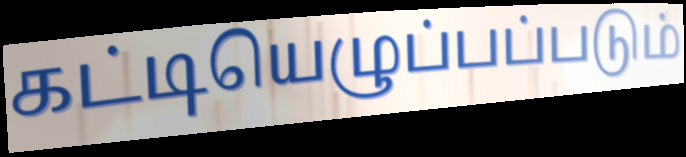
கட்டியெழுப்பப்படும்